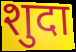
शुदा